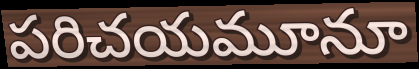
పరిచయమూనూ